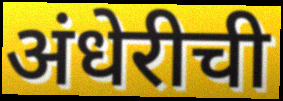
अंधेरीची